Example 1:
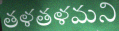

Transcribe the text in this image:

తళతళమని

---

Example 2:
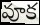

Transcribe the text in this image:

వూక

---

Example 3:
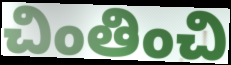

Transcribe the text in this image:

చింతించి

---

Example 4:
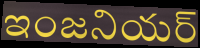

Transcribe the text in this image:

ఇంజనియర్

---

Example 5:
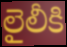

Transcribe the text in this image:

లైలీకి